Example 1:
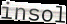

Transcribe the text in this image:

insol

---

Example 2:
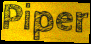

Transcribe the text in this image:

Piper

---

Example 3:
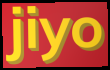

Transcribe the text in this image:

jiyo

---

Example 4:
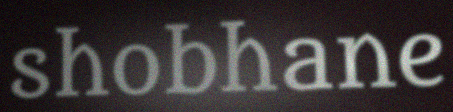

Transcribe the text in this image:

shobhane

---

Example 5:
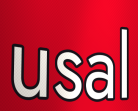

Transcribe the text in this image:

usal